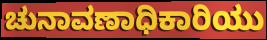
ಚುನಾವಣಾಧಿಕಾರಿಯು